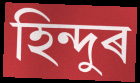
হিন্দুৰ